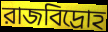
রাজবিদ্রোহ